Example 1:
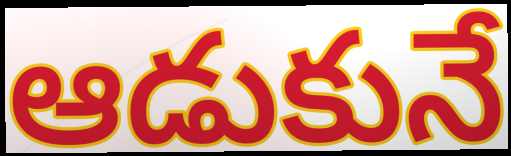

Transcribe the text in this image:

ఆడుకునే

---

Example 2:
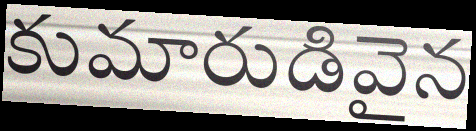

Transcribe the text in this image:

కుమారుడివైన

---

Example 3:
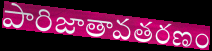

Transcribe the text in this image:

పారిజాతావతరణం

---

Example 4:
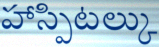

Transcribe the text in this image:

హాస్పిటల్కు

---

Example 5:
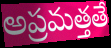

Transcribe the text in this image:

అప్రమత్తతే